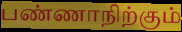
பண்ணாநிற்கும்